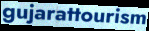
gujarattourism